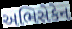
અભિસેકેન